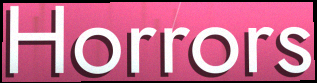
Horrors